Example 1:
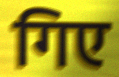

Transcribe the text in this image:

गिए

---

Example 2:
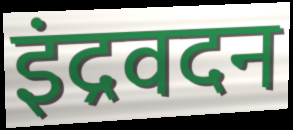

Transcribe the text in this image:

इंद्रवदन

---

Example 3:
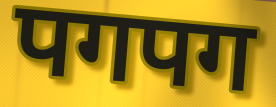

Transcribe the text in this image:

पगपग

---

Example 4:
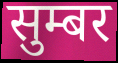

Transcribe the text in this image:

सुम्बर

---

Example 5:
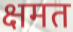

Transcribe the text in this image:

क्षमत